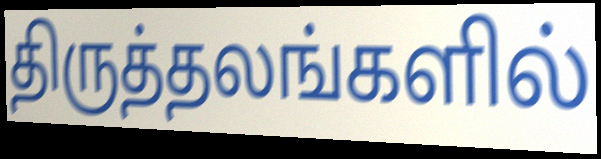
திருத்தலங்களில்